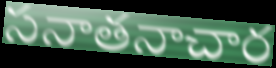
సనాతనాచార